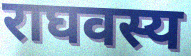
राघवस्य